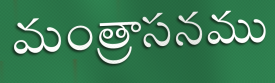
మంత్రాసనము